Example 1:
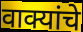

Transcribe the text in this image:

वाक्यांचे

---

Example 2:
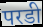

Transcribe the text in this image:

परडी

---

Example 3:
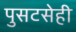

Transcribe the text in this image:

पुसटसेही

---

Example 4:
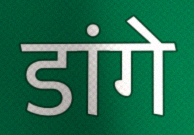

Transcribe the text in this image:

डांगे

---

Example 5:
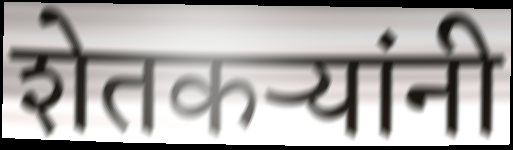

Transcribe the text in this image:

शेतकऱ्यांनी